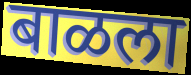
बाळला